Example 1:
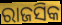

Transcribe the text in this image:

ରାଜସିକ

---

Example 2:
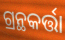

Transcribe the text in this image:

ଗ୍ରନ୍ଥକର୍ତ୍ତା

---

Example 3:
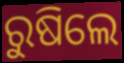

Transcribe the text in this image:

ରୁଷିଲେ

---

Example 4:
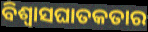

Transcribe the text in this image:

ବିଶ୍ଵାସଘାତକତାର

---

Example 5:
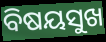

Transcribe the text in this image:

ବିଷୟସୁଖ